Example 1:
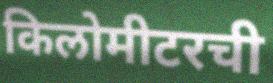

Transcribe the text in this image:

किलोमीटरची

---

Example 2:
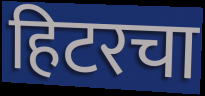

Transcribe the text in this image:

हिटरचा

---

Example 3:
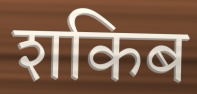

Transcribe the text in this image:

शकिब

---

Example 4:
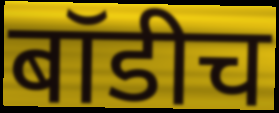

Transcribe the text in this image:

बॉडीच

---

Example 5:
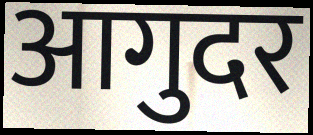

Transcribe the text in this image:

आगुदर